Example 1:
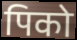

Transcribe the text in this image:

पिको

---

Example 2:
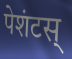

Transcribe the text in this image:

पेशंटस्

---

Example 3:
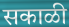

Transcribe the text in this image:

सकाळी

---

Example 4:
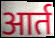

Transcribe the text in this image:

आर्त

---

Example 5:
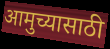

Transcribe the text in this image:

आमुच्यासाठी